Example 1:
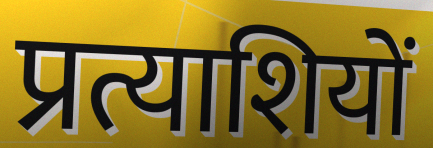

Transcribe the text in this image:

प्रत्याशियों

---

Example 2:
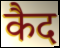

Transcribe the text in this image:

कैद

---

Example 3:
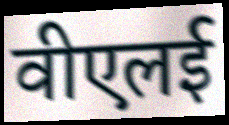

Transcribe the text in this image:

वीएलई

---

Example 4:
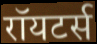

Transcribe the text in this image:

रॉयटर्स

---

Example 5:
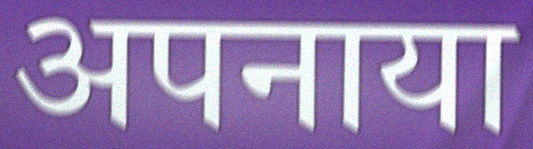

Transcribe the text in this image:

अपनाया